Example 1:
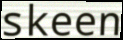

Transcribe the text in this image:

skeen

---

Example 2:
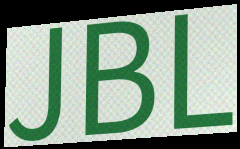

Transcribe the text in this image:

JBL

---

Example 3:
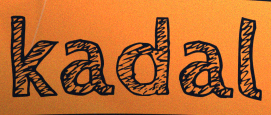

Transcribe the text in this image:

kadal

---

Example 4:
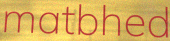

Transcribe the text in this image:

matbhed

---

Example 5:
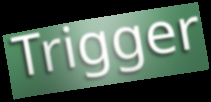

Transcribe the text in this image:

Trigger